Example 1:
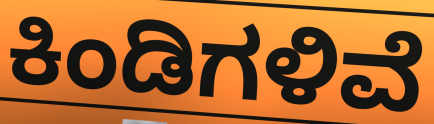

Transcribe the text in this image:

ಕಿಂಡಿಗಳಿವೆ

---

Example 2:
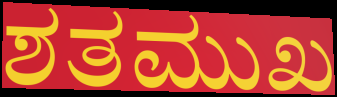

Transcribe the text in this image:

ಶತಮುಖ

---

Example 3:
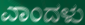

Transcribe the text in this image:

ಎಾಂದಳು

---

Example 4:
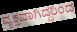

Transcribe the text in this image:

ವ್ಯಕ್ತವಾಗಿದ್ದರಿಂದ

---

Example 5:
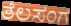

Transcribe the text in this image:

ತೆಲಸಂಗ